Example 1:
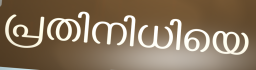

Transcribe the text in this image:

പ്രതിനിധിയെ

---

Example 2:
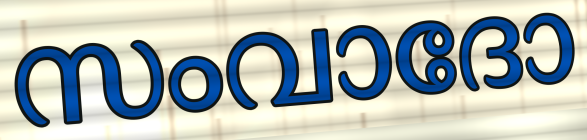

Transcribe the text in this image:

സംവാദോ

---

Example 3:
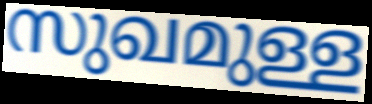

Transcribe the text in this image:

സുഖമുള്ള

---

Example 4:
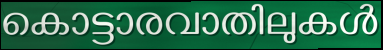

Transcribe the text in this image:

കൊട്ടാരവാതിലുകൾ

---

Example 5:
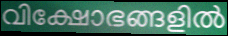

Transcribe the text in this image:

വിക്ഷോഭങ്ങളിൽ